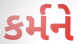
કર્મને